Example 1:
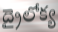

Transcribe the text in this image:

ద్రైలోక్య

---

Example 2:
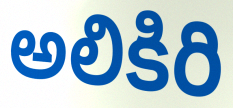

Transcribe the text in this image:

అలికిరి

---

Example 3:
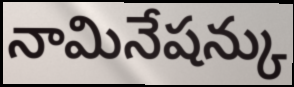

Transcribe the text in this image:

నామినేషన్కు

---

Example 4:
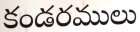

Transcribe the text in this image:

కండరములు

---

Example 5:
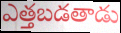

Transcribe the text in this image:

ఎత్తబడతాడు